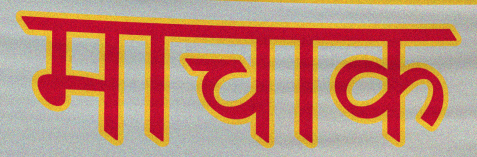
माचाक